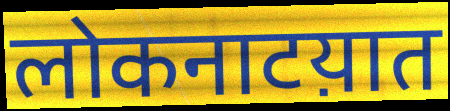
लोकनाटय़ात